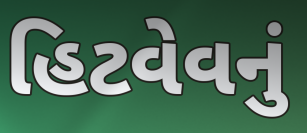
હિટવેવનું